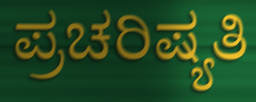
ಪ್ರಚರಿಷ್ಯತಿ